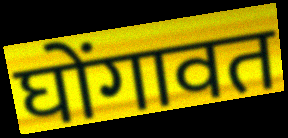
घोंगावत